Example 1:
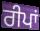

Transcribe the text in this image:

ਰੀਪਾਂ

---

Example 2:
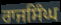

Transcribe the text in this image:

ਰਾਜਸਿੰਘ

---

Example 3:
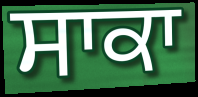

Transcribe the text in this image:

ਸਾਕਾ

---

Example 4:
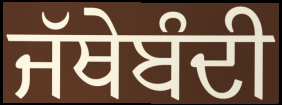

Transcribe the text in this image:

ਜੱਥੇਬੰਦੀ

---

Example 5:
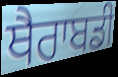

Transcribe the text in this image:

ਥੈਰਾਬਡੀ